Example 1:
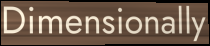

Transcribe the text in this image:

Dimensionally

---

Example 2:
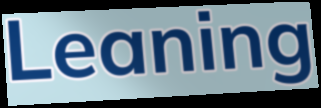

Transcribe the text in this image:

Leaning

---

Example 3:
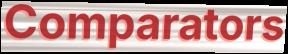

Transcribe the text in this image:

Comparators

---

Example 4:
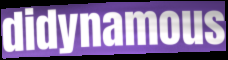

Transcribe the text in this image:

didynamous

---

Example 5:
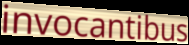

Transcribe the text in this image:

invocantibus